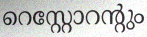
റെസ്റ്റോറന്റും